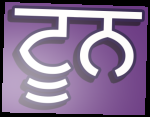
ਟੂਨ